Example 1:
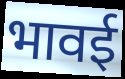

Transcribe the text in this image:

भावई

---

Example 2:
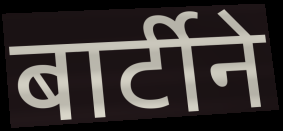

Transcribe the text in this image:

बार्टीने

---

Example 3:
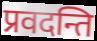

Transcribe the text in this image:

प्रवदन्ति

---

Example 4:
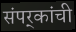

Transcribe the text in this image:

संपर्कांची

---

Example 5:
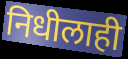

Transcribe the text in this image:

निधीलाही